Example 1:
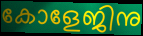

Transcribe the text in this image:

കോളേജിനു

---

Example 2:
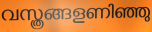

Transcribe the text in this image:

വസ്ത്രങ്ങളണിഞ്ഞു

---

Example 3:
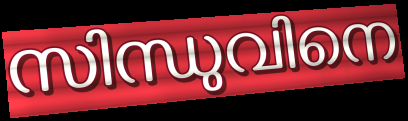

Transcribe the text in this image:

സിന്ധുവിനെ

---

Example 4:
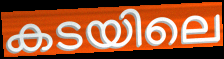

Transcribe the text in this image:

കടയിലെ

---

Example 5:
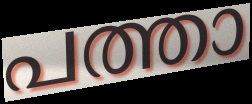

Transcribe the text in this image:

പത്താ